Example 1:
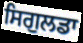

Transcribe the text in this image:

ਸਿਗੁਲਡਾ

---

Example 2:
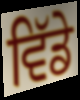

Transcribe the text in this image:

ਵਿੱਡੇ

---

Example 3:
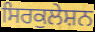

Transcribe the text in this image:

ਸਿਰਕੁਲੇਸ਼ਨ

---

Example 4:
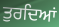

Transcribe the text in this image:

ਤੁਰਦਿਆਂ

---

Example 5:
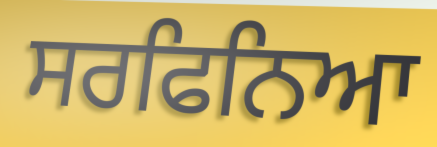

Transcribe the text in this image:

ਸਰਫਿਨਿਆ